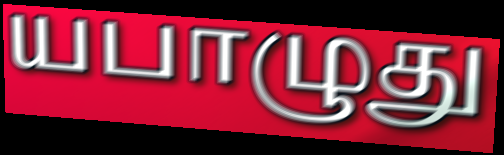
யபாழுது